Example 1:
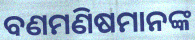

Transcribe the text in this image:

ବଣମଣିଷମାନଙ୍କ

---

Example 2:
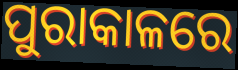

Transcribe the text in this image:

ପୁରାକାଳରେ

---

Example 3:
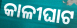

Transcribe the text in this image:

କାଳୀଘାଟ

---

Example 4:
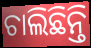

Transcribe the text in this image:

ଚାଲିଛିନ୍ତି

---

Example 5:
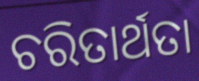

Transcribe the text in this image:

ଚରିତାର୍ଥତା